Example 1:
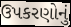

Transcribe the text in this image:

ઉપકરણોનું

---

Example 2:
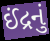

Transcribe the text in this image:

ઈંદ્રનું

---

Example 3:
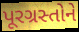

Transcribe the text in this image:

પૂરગ્રસ્તોને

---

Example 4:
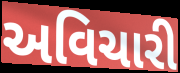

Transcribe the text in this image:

અવિચારી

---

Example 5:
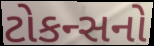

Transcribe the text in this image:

ટોકન્સનો